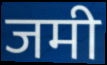
जमी